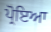
ਪ੍ਰੋਇਆ